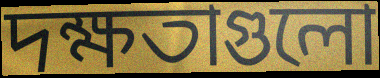
দক্ষতাগুলো